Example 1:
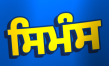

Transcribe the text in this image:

ਸਿਮੰਸ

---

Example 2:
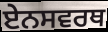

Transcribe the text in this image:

ਏਨਸਵਰਥ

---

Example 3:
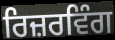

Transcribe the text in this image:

ਰਿਜ਼ਰਵਿੰਗ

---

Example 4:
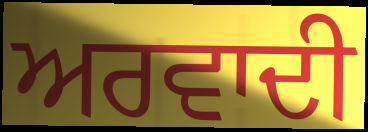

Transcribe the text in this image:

ਅਰਵਾਦੀ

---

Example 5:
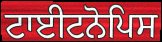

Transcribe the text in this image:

ਟਾਈਟਨੋਪਿਸ